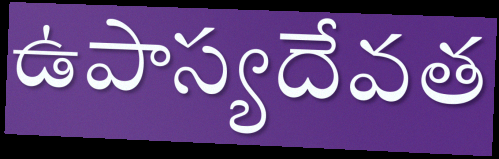
ఉపాస్యదేవత